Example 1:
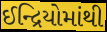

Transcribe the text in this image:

ઈન્દ્રિયોમાંથી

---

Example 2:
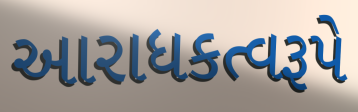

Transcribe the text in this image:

આરાધકત્વરૂપે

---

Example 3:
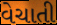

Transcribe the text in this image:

વેચાતી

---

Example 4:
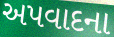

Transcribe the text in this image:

અપવાદના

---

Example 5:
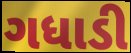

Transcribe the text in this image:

ગધાડી